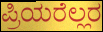
ಪ್ರಿಯರೆಲ್ಲರ